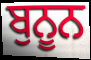
ਬੁਨੂਨ